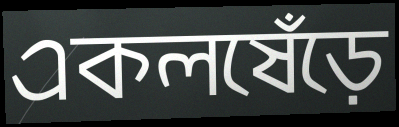
একলষেঁড়ে